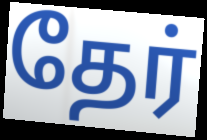
தேர்